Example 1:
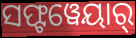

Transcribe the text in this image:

ସଫ୍ଟୱେୟାର୍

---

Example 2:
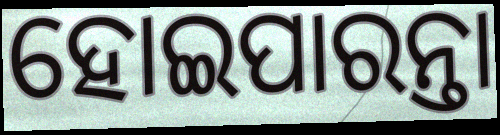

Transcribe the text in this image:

ହୋଇପାରନ୍ତା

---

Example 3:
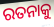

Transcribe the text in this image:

ରତନାକୁ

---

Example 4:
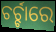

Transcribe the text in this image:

ଚର୍ଚ୍ଚାରେ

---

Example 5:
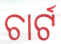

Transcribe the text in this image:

ଚାର୍ଟ